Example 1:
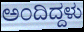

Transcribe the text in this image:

ಅಂದಿದ್ದಳು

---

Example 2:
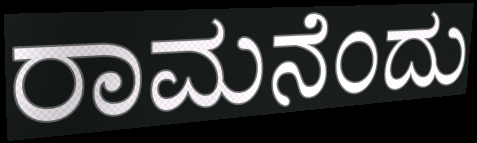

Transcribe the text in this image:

ರಾಮನೆಂದು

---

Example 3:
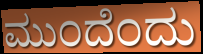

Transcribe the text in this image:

ಮುಂದೆಂದು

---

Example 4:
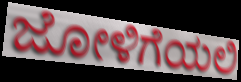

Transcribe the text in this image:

ಜೋಳಿಗೆಯಲಿ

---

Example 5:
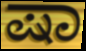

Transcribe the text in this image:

ಷಾ